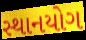
સ્થાનયોગ